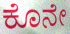
ಕೊನೇ